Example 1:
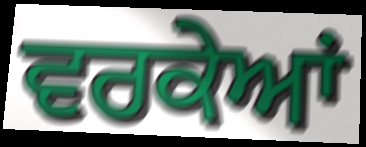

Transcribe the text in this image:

ਵਰਕੇਆਂ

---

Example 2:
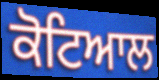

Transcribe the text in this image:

ਕੋਟਿਆਲ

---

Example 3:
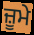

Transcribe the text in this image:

ਜ਼ੂਮੇ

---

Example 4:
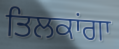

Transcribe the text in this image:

ਤਿਲਕਾਂਗਾ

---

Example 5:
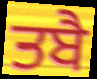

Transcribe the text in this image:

ਤਬੈ